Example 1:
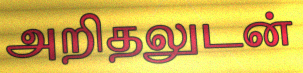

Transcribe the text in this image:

அறிதலுடன்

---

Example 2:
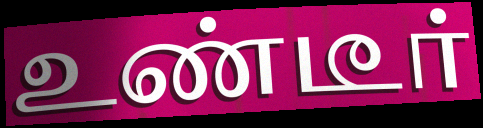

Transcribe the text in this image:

உண்டீர்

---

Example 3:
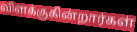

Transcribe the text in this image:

விளக்குகின்றார்கள்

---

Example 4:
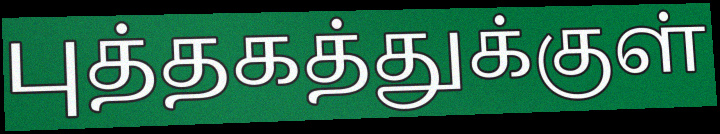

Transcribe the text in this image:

புத்தகத்துக்குள்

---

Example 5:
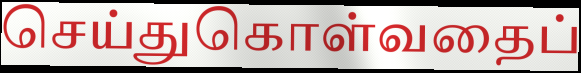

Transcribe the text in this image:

செய்துகொள்வதைப்